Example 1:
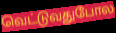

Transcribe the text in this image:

வெட்டுவதுபோல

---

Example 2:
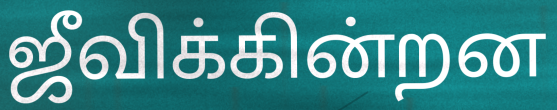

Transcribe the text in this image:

ஜீவிக்கின்றன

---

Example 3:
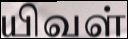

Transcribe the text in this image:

யிவள்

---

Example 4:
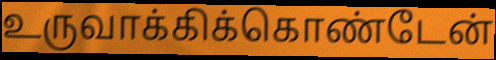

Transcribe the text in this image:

உருவாக்கிக்கொண்டேன்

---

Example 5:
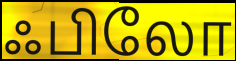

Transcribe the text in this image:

ஃபிலோ